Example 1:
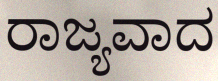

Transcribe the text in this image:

ರಾಜ್ಯವಾದ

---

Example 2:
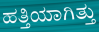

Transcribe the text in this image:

ಹತ್ತಿಯಾಗಿತ್ತು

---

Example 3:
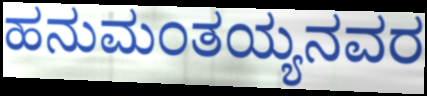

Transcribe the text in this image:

ಹನುಮಂತಯ್ಯನವರ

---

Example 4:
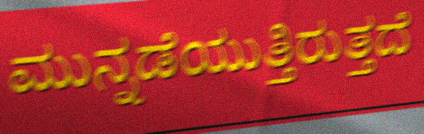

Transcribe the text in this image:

ಮುನ್ನಡೆಯುತ್ತಿರುತ್ತದೆ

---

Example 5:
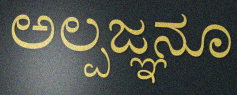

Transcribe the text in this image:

ಅಲ್ಪಜ್ಞನೂ